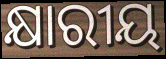
କ୍ଷାରୀୟ